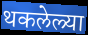
थकलेल्या